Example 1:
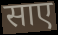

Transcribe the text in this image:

साए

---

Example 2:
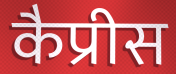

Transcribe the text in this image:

कैप्रीस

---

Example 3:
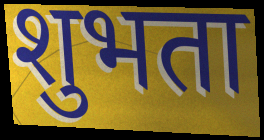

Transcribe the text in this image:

शुभता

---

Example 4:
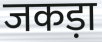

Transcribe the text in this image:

जकड़ा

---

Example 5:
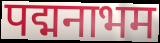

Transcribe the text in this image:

पद्मनाभम